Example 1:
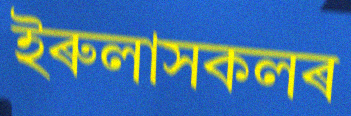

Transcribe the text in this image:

ইৰুলাসকলৰ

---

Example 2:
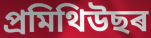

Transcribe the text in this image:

প্ৰমিথিউছৰ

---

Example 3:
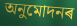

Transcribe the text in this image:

অনুমোদনৰ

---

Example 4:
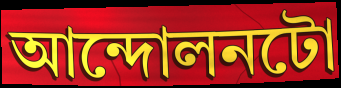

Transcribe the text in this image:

আন্দোলনটো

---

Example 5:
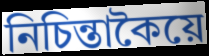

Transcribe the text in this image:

নিচিন্তাকৈয়ে